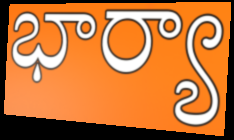
భార్యా